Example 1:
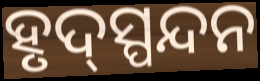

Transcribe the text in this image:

ହୃଦ୍‍ସ୍ପନ୍ଦନ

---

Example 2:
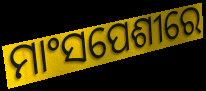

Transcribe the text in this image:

ମାଂସପେଶୀରେ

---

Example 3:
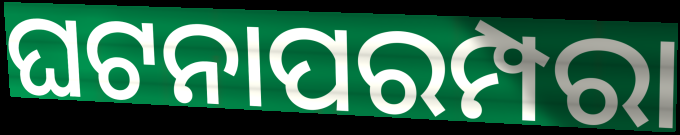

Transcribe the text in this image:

ଘଟନାପରମ୍ପରା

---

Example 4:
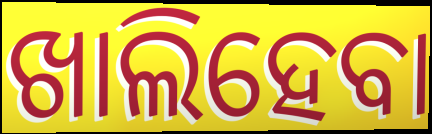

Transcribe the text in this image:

ଖାଲିହେବା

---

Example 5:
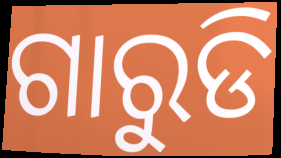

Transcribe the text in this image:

ଗାରୁଡି